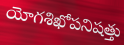
యోగశిఖోపనిషత్తు